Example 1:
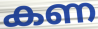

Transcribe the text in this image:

കണ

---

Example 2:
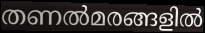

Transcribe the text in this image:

തണൽമരങ്ങളിൽ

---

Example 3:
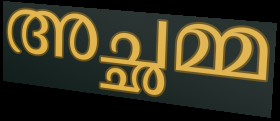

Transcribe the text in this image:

അച്ഛമ്മ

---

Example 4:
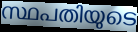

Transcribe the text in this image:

സ്ഥപതിയുടെ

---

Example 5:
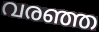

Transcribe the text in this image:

വരഞ്ഞ